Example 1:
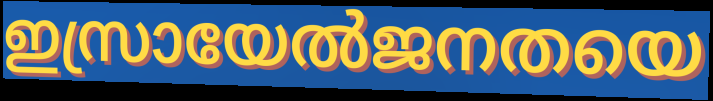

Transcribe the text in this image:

ഇസ്രായേൽജനതയെ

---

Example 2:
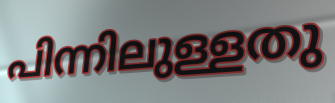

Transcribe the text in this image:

പിന്നിലുള്ളതു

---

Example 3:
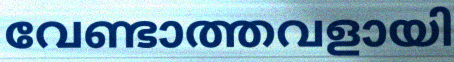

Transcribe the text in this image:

വേണ്ടാത്തവളായി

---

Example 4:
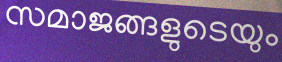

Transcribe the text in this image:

സമാജങ്ങളുടെയും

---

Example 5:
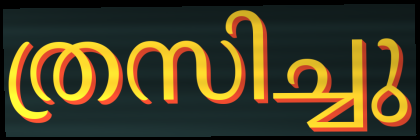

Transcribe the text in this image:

ത്രസിച്ചു